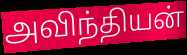
அவிந்தியன்